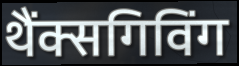
थैंक्सगिविंग